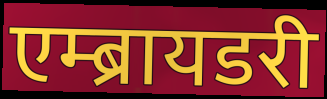
एम्ब्रायडरी